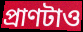
প্রাণটাও